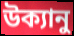
উক্যানু